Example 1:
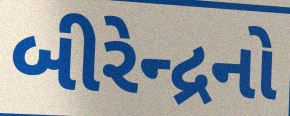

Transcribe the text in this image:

બીરેન્દ્રનો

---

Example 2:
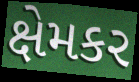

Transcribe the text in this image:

ક્ષેમકર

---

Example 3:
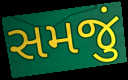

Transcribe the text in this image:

સમજું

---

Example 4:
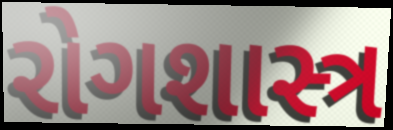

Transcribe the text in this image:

રોગશાસ્ત્ર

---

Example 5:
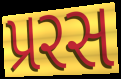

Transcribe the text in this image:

પ્રરસ